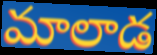
మాలాడ